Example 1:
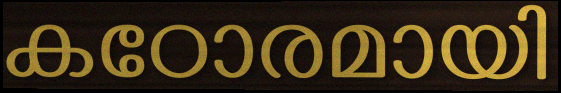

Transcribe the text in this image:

കഠോരമായി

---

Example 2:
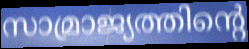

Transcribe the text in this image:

സാമ്രാജ്യത്തിന്റെ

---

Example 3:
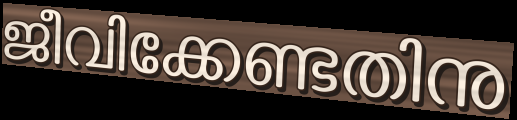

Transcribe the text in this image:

ജീവിക്കേണ്ടതിനു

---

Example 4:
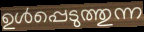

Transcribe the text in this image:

ഉൾപ്പെടുത്തുന്ന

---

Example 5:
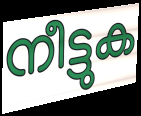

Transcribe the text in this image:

നീട്ടുക